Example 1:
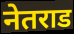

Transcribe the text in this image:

नेतराड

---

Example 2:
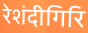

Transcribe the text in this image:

रेशंदीगिरि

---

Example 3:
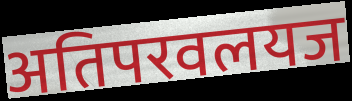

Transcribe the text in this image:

अतिपरवलयज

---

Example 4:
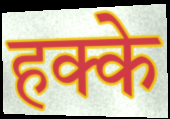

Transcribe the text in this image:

हक्के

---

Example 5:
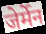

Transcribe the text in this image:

जेर्मेन